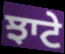
ਝਾਟੇ